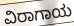
ವಿರಾಗಾಯ